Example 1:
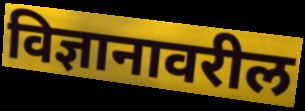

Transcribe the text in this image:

विज्ञानावरील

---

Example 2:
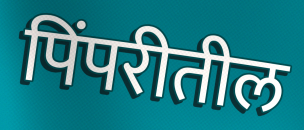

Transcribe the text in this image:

पिंपरीतील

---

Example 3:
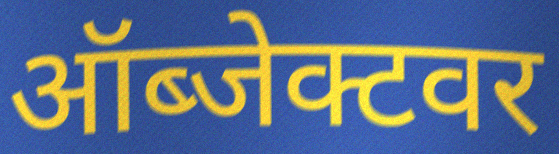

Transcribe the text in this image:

ऑब्जेक्टवर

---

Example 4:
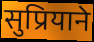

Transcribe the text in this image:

सुप्रियाने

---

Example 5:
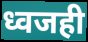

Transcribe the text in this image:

ध्वजही